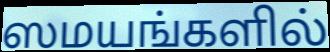
ஸமயங்களில்